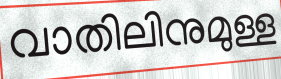
വാതിലിനുമുള്ള